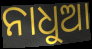
ନାଧୁଆ